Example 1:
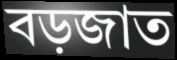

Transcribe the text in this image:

বড়জাত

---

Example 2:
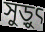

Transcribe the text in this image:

সুড়ুৎ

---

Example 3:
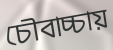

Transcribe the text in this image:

চৌবাচ্চায়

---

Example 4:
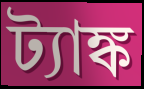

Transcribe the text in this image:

ট্যাঙ্ক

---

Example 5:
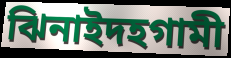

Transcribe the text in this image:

ঝিনাইদহগামী